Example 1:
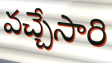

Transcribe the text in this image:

వచ్చేసారి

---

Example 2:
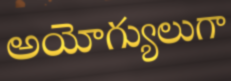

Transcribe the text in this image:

అయోగ్యులుగా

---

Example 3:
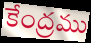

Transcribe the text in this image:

కేంద్రము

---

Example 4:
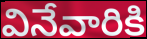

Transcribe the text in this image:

వినేవారికి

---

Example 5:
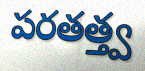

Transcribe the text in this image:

పరతత్త్వ